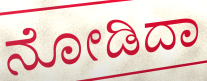
ನೋಡಿದಾ